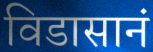
विडासानं